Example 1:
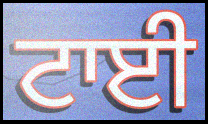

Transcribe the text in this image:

ਟਾਈ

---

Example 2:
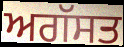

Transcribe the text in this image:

ਅਗੱਸਤ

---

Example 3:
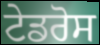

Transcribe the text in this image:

ਟੇਡਰੋਸ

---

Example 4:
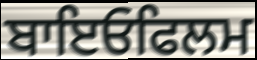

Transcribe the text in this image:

ਬਾਇਓਫਿਲਮ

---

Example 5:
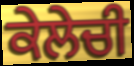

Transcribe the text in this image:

ਕੇਲੇਚੀ